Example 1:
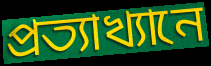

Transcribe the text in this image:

প্রত্যাখ্যানে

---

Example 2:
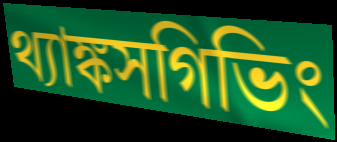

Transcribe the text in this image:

থ্যাঙ্কসগিভিং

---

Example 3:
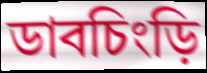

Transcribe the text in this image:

ডাবচিংড়ি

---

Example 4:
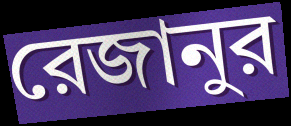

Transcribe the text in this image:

রেজানুর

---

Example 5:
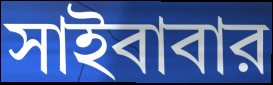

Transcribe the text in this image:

সাইবাবার